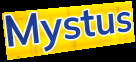
Mystus